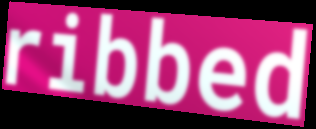
ribbed